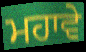
ਮਹਾਵੇ